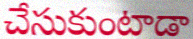
చేసుకుంటాడా